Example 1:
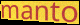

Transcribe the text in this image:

manto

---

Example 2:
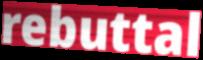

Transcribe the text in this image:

rebuttal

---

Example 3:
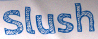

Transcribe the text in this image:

Slush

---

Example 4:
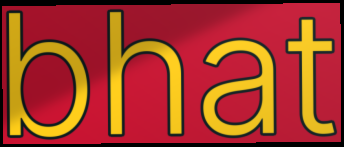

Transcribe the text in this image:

bhat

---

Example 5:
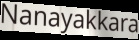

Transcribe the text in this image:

Nanayakkara